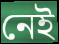
নেই